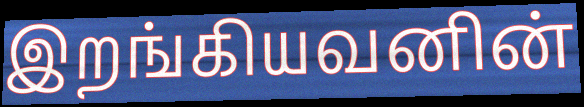
இறங்கியவனின்